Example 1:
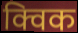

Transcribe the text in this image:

क्विक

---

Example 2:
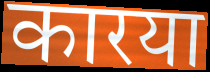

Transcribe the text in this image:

कारया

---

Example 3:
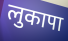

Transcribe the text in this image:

लुकापा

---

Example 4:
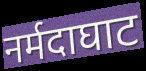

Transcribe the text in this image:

नर्मदाघाट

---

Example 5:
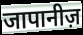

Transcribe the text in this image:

जापानीज़